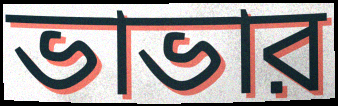
ভাভার